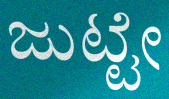
ಜುಟ್ಟೇ